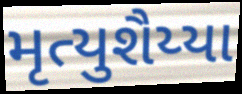
મૃત્યુશૈય્યા